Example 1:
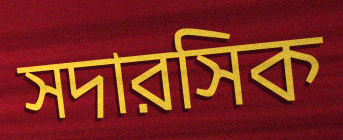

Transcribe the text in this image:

সদারসিক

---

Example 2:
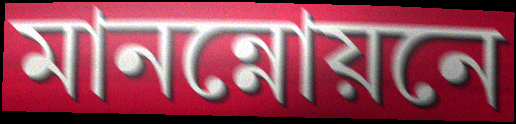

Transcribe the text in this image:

মানন্নোয়নে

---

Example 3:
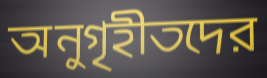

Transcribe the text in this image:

অনুগৃহীতদের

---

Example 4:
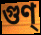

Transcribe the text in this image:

গুণ্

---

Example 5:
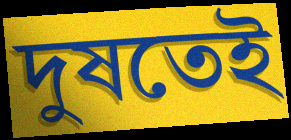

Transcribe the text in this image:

দুষতেই